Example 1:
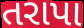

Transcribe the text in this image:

તરાપા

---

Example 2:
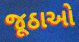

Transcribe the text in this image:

જૂઠાઓ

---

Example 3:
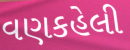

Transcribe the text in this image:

વણકહેલી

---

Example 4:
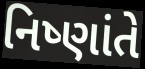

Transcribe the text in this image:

નિષ્ણાંતે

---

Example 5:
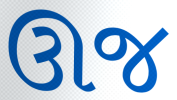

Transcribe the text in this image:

ઊજ